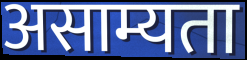
असाम्यता